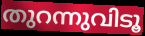
തുറന്നുവിടൂ